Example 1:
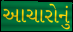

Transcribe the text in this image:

આચારોનું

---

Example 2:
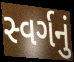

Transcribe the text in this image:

સ્વર્ગનું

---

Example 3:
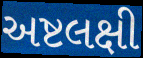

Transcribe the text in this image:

અષ્ટલક્ષી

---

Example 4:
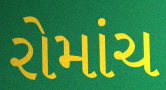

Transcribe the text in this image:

રોમાંચ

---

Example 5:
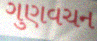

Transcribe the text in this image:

ગુણવચન